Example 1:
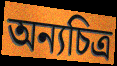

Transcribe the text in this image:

অন্যচিত্র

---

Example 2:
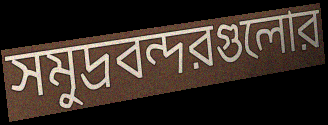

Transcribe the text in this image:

সমুদ্রবন্দরগুলোর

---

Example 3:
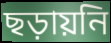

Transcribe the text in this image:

ছড়ায়নি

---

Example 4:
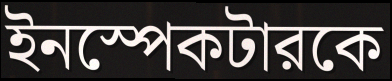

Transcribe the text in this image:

ইনস্পেকটারকে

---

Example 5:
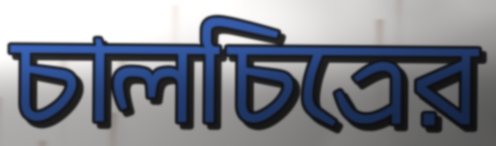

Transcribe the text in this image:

চালচিত্রের